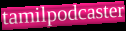
tamilpodcaster